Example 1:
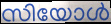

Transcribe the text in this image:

സിയോൾ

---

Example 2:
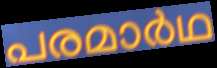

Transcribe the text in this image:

പരമാർഥ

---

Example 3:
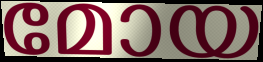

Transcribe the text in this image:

മോയ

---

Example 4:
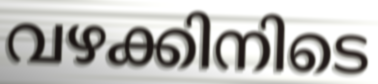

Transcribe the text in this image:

വഴക്കിനിടെ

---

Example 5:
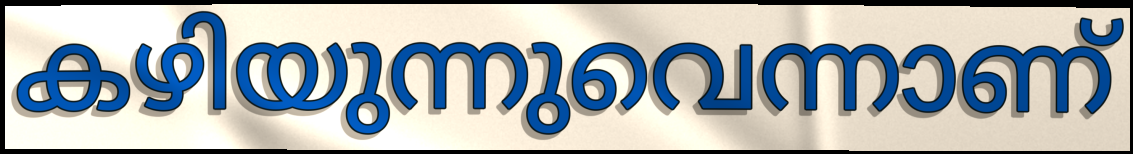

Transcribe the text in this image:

കഴിയുന്നുവെന്നാണ്